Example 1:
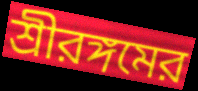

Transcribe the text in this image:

শ্রীরঙ্গমের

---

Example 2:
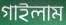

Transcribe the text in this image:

গাইলাম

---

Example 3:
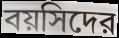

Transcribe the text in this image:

বয়সিদের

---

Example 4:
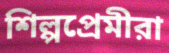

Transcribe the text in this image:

শিল্পপ্রেমীরা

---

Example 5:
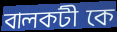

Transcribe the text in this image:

বালকটীকে